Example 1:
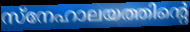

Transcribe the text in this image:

സ്നേഹാലയത്തിന്റെ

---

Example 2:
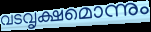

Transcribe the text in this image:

വടവൃക്ഷമൊന്നും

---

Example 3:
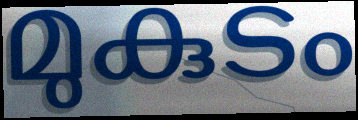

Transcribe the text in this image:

മുകുടം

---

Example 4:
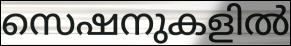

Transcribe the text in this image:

സെഷനുകളിൽ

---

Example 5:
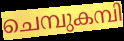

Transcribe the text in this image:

ചെമ്പുകമ്പി